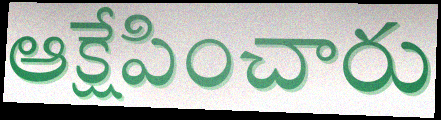
ఆక్షేపించారు